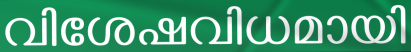
വിശേഷവിധമായി